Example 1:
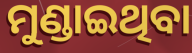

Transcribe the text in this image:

ମୁଣ୍ଡାଇଥିବା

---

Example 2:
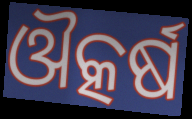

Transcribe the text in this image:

ଔତ୍କର୍ଷ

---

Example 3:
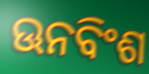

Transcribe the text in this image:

ଊନବିଂଶ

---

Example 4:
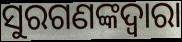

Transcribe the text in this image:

ସୁରଗଣଙ୍କଦ୍ୱାରା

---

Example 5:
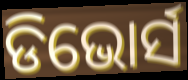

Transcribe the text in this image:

ଡିଭୋର୍ସ